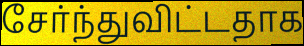
சேர்ந்துவிட்டதாக